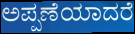
ಅಪ್ಪಣೆಯಾದರೆ